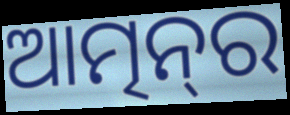
ଆତ୍ମନ୍‌ର